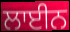
ਲਾਈਨ